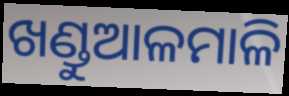
ଖଣ୍ଡୁଆଳମାଳି